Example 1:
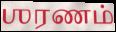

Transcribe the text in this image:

ஶரணம்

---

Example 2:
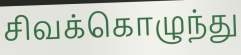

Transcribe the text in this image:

சிவக்கொழுந்து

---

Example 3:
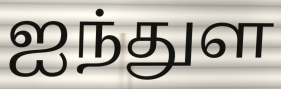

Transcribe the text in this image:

ஐந்துள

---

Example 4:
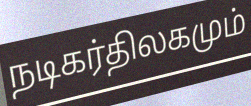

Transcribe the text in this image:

நடிகர்திலகமும்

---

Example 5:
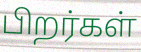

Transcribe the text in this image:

பிறர்கள்